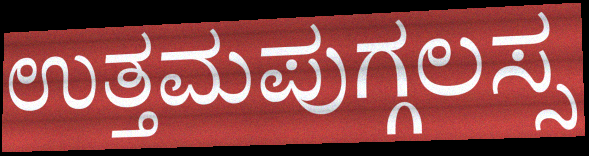
ಉತ್ತಮಪುಗ್ಗಲಸ್ಸ